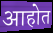
आहोत